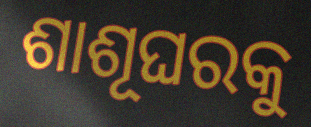
ଶାଶୂଘରକୁ